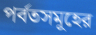
পর্বতসমূহের